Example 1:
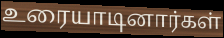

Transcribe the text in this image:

உரையாடினார்கள்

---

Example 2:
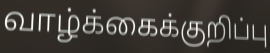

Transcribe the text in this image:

வாழ்க்கைக்குறிப்பு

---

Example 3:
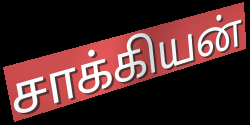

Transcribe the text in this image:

சாக்கியன்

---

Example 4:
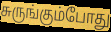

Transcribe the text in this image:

சுருங்கும்போது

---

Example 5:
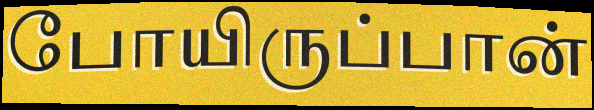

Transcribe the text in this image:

போயிருப்பான்